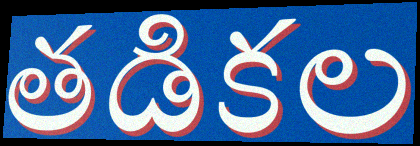
తడికల